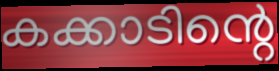
കക്കാടിന്റെ